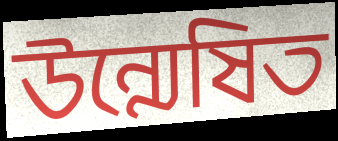
উন্মেষিত